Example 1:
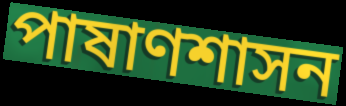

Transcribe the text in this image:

পাষাণশাসন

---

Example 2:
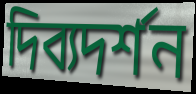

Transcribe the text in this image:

দিব্যদর্শন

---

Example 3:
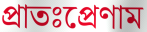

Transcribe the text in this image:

প্রাতঃপ্রেণাম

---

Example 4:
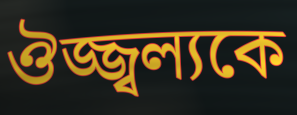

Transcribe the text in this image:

ঔজ্জ্বল্যকে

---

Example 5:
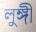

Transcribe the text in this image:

লুঙ্গী